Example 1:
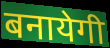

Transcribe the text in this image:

बनायेगी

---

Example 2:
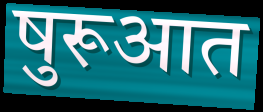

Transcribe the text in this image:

षुरूआत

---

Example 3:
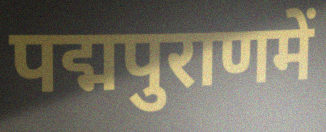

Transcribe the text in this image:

पद्मपुराणमें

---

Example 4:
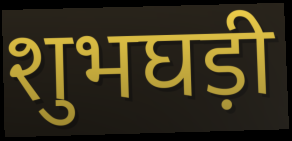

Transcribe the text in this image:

शुभघड़ी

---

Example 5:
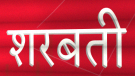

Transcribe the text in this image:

शरबती